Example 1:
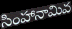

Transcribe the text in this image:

సింహానామివ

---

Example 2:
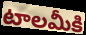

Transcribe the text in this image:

టాలమీకి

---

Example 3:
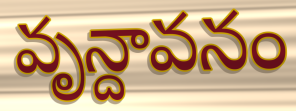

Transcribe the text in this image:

వృన్దావనం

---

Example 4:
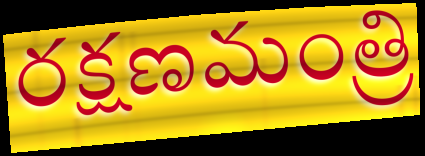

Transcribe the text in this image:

రక్షణమంత్రి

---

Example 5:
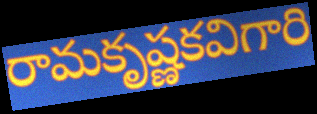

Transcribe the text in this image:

రామకృష్ణకవిగారి